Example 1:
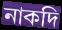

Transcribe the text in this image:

নাকদি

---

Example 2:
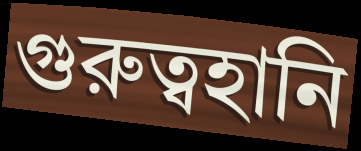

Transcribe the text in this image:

গুরুত্বহানি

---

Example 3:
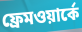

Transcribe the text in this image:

ফ্রেমওয়ার্কে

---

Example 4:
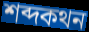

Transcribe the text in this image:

শব্দকথন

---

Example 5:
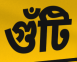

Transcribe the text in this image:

গুঁটি